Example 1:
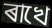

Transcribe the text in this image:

ৰাখে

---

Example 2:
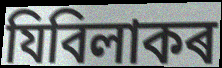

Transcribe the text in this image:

যিবিলাকৰ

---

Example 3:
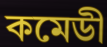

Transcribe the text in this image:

কমেডী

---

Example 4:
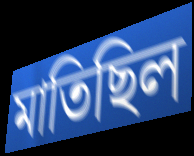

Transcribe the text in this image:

মাতিছিল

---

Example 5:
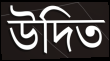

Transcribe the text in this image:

উদিত